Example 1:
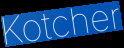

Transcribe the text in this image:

Kotcher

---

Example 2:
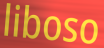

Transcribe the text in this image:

liboso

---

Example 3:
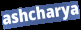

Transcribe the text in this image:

ashcharya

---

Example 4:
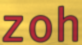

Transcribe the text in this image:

zoh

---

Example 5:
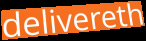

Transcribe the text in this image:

delivereth